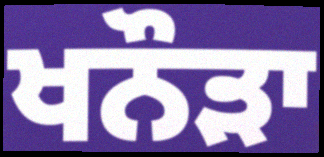
ਖਨੌੜਾ